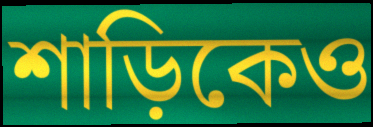
শাড়িকেও